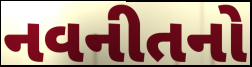
નવનીતનો